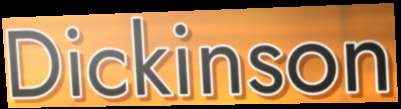
Dickinson